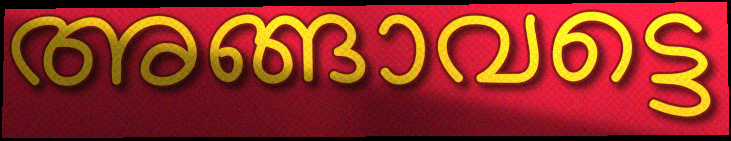
അങ്ങാവട്ടെ